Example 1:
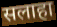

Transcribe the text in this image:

सलाहा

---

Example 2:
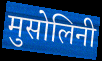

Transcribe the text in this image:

मुसोलिनी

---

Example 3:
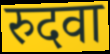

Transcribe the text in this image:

रुदवा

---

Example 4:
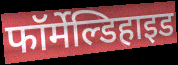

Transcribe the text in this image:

फॉर्मेल्डिहाइड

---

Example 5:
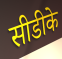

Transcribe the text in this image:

सीडीके